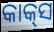
କାକ୍‌ସ